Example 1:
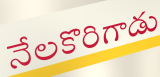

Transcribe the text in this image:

నేలకొరిగాడు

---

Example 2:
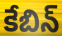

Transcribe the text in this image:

కేబిన్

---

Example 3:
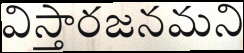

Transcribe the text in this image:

విస్తారజనమని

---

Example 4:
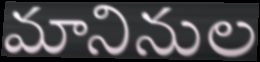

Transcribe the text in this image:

మానినుల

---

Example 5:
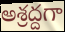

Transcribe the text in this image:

అశ్రద్దగా